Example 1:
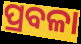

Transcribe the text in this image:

ପ୍ରବଳା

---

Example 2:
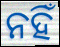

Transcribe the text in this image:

ନହିଁ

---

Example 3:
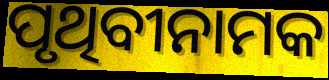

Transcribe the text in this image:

ପୃଥିବୀନାମକ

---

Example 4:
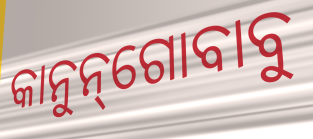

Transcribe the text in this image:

କାନୁନ୍‌ଗୋବାବୁ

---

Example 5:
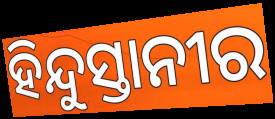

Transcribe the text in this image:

ହିନ୍ଦୁସ୍ତାନୀର